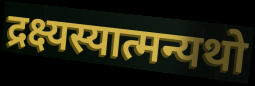
द्रक्ष्यस्यात्मन्यथो